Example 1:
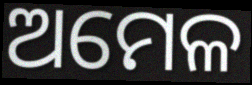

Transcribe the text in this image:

ଅମେଳ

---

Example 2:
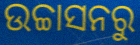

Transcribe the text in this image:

ଉଚ୍ଚାସନରୁ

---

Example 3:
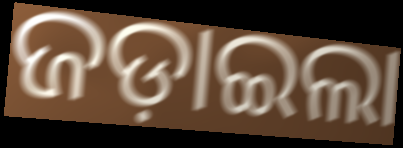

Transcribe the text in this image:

ଜଡ଼ାଇଲା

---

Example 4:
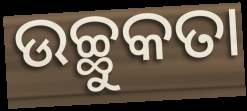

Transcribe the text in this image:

ଉଚ୍ଛୁକତା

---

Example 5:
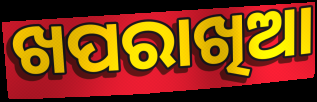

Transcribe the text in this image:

ଖପରାଖିଆ